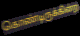
கொண்டிருக்கின்ற